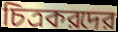
চিত্রকরদের